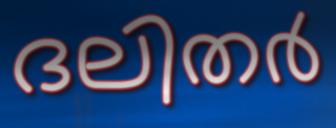
ദലിതർ